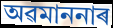
অৱমাননাৰ